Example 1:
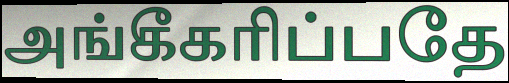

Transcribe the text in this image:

அங்கீகரிப்பதே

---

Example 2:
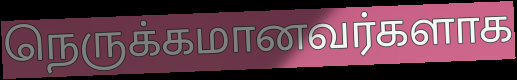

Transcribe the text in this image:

நெருக்கமானவர்களாக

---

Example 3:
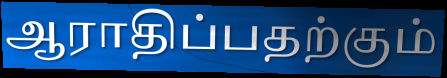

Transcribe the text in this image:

ஆராதிப்பதற்கும்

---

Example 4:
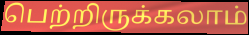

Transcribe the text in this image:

பெற்றிருக்கலாம்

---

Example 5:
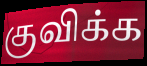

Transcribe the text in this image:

குவிக்க